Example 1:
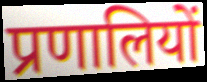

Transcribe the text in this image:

प्रणालियों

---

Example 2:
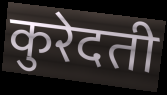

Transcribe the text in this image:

कुरेदती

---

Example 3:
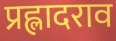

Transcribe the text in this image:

प्रह्लादराव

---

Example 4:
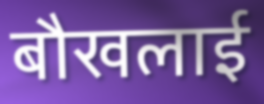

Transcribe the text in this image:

बौखलाई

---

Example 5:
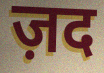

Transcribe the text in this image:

ज़द